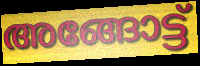
അങ്ങോട്ട്